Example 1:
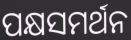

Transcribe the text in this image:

ପକ୍ଷସମର୍ଥନ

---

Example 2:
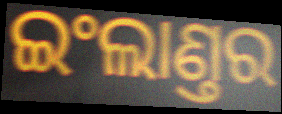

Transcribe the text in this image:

ଇଂଲାଣ୍ତର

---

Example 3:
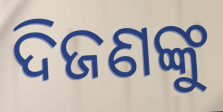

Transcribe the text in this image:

ଦିଜଣଙ୍କୁ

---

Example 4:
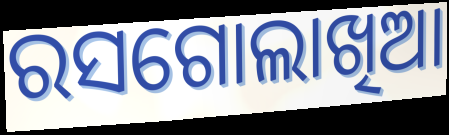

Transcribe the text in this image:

ରସଗୋଲାଖିଆ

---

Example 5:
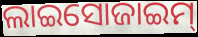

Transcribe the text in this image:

ଲାଇସୋଜାଇମ୍